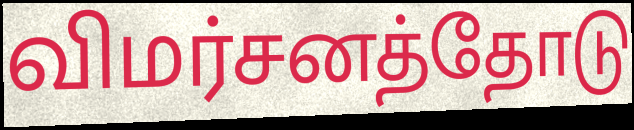
விமர்சனத்தோடு